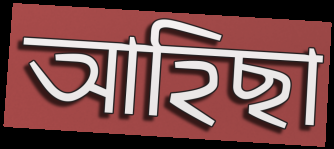
আহিছা